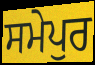
ਸਮੇਪੁਰ